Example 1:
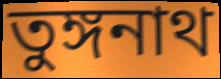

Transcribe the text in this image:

তুঙ্গনাথ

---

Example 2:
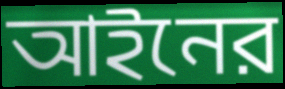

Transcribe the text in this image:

আইনের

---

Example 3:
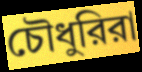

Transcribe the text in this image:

চৌধুরিরা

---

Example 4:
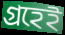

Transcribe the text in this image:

গ্রহেই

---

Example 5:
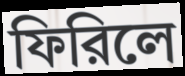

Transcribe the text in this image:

ফিরিলে